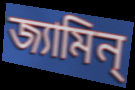
জ্যামিন্